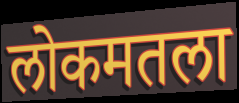
लोकमतला